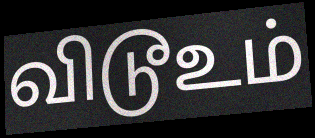
விடூஉம்